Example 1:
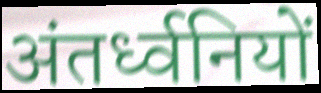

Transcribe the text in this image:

अंतर्ध्वनियों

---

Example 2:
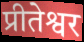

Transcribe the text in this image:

प्रीतेश्वर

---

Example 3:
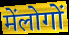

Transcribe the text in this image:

मेंलोगों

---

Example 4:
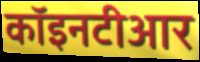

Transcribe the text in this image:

कॉइनटीआर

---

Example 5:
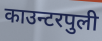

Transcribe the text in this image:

काउन्टरपुली